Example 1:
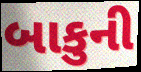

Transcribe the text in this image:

બાકુની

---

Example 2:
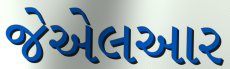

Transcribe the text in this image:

જેએલઆર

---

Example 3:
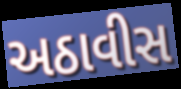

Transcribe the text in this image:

અઠાવીસ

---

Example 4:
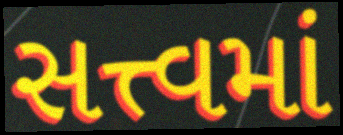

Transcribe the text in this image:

સત્ત્વમાં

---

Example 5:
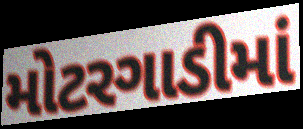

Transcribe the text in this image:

મોટરગાડીમાં